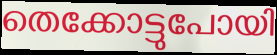
തെക്കോട്ടുപോയി